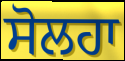
ਸੋਲਹਾ